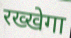
रख्खेगा